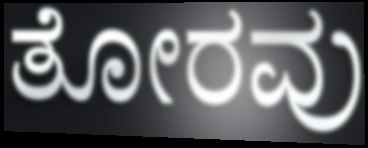
ತೋರವು